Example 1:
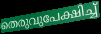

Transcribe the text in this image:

തെരുവുപേക്ഷിച്ച്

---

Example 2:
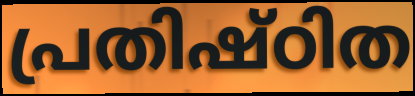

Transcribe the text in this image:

പ്രതിഷ്ഠിത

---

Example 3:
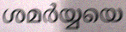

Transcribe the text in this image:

ശമർയ്യയെ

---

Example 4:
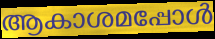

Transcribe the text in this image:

ആകാശമപ്പോൾ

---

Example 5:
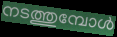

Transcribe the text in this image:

നടത്തുമ്പോൾ